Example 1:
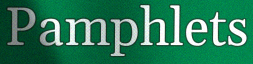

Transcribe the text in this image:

Pamphlets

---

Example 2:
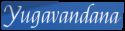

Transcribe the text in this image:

Yugavandana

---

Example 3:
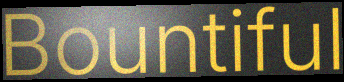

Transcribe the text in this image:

Bountiful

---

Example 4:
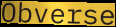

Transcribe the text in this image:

Obverse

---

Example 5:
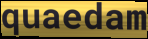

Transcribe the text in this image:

quaedam